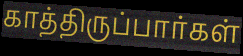
காத்திருப்பார்கள்